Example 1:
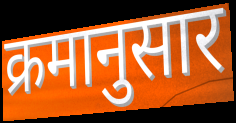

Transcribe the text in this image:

क्रमानुसार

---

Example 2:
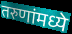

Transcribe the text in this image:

तरुणांमध्ये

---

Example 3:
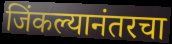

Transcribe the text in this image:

जिंकल्यानंतरचा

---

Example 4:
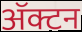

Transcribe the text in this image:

ॲक्टन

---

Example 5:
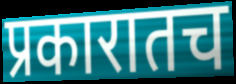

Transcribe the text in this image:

प्रकारातच